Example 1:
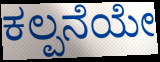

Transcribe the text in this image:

ಕಲ್ಪನೆಯೇ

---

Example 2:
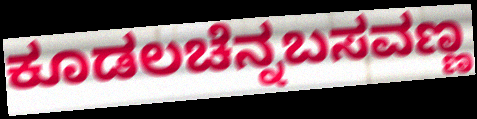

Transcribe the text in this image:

ಕೂಡಲಚೆನ್ನಬಸವಣ್ಣ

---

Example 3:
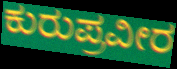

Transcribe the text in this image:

ಕುರುಪ್ರವೀರ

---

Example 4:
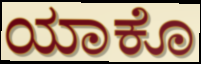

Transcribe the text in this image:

ಯಾಕೊ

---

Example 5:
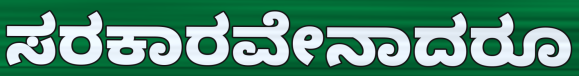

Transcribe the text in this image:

ಸರಕಾರವೇನಾದರೂ